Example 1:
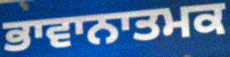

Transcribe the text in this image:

ਭਾਵਾਨਾਤਮਕ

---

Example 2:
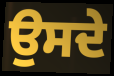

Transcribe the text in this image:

ਉਸਦੇ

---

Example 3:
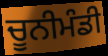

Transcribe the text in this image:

ਚੂਨੀਮੰਡੀ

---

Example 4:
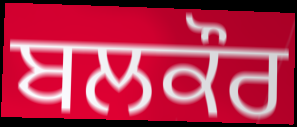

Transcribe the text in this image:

ਬਲਕੌਰ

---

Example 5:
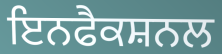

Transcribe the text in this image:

ਇਨਫੈਕਸ਼ਨਲ